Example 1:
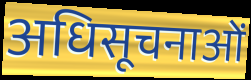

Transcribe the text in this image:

अधिसूचनाओं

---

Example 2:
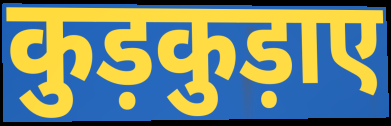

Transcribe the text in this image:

कुड़कुड़ाए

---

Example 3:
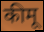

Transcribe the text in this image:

कीमू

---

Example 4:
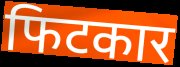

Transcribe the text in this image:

फिटकार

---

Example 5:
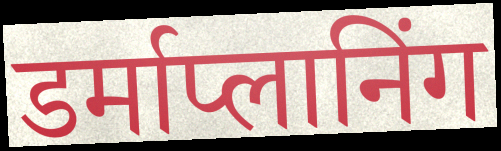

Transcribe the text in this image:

डर्माप्लानिंग